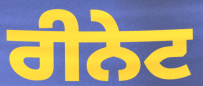
ਰੀਨੇਟ